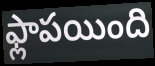
ఫ్లాపయింది